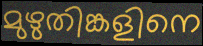
മുഴുതിങ്കളിനെ